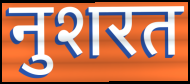
नुशरत